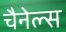
चैनेल्स